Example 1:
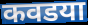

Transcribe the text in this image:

कवडया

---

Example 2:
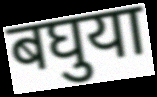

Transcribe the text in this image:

बघुया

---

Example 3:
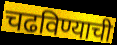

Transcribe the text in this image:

चढविण्याची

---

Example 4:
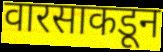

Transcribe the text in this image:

वारसाकडून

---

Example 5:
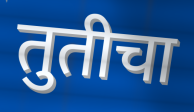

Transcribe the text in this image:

तुतीचा